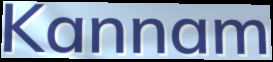
Kannam